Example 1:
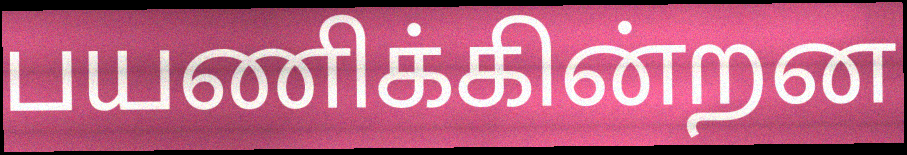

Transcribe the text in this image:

பயணிக்கின்றன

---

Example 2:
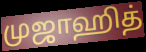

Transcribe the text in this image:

முஜாஹித்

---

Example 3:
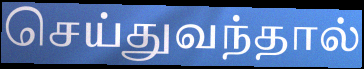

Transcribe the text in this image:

செய்துவந்தால்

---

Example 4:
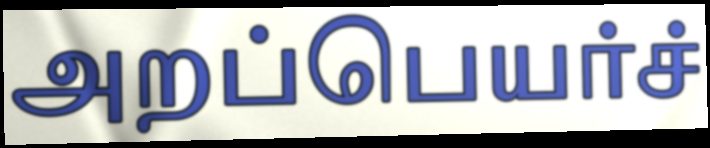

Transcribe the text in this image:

அறப்பெயர்ச்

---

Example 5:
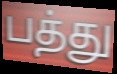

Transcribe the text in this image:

பத்து